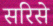
सरिसे